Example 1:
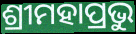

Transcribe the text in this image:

ଶ୍ରୀମହାପ୍ରଭୁ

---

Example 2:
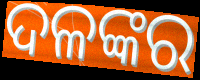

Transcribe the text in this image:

ଦଳଙ୍କର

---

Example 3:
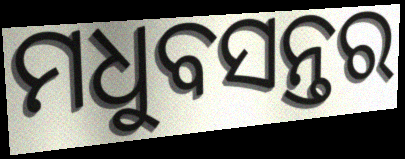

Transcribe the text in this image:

ମଧୁବସନ୍ତର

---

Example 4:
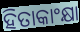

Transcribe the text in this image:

ହିତାକାଂକ୍ଷା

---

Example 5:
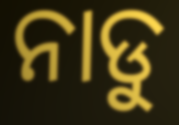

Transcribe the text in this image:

ନାଡୁ